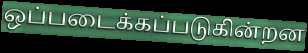
ஒப்படைக்கப்படுகின்றன